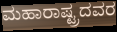
ಮಹಾರಾಷ್ಟ್ರದವರ